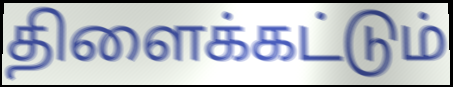
திளைக்கட்டும்